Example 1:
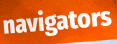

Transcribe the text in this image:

navigators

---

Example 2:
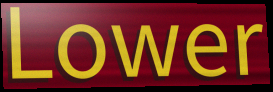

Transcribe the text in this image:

Lower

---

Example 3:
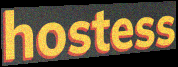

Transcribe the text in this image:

hostess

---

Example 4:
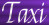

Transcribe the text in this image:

Taxi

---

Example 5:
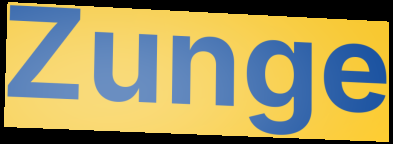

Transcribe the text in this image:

Zunge